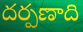
దర్పణాది